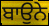
ਬਾਉਨੇ